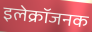
इलेक्रॉजनक